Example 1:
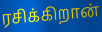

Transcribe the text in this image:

ரசிக்கிறான்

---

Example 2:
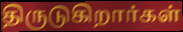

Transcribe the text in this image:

திருடுகிறார்கள்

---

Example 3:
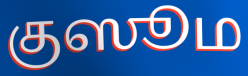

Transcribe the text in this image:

குஸூம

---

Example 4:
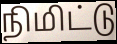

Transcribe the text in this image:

நிமிட்டு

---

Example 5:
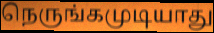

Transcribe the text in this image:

நெருங்கமுடியாது